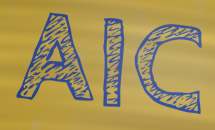
AIC